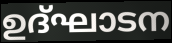
ഉദ്ഘാടന